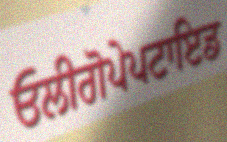
ਓਲੀਗੋਪੇਪਟਾਇਡ